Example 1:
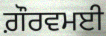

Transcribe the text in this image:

ਗ਼ੌਰਵਮਈ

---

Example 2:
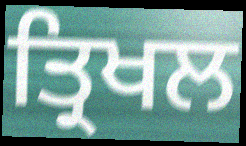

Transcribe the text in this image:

ਤ੍ਰਿਖਲ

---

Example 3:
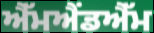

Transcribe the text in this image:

ਐੱਮਐਂਡਐੱਮ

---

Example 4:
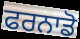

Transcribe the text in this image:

ਫਰਨਾਡੋ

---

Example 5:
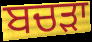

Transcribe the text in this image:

ਬਚੜਾ